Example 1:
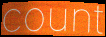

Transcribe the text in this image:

count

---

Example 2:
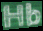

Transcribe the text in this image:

Hb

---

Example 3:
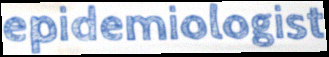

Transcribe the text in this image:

epidemiologist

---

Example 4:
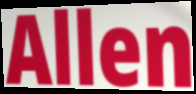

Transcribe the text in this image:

Allen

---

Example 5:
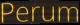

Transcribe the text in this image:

Perum